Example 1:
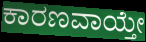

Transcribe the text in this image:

ಕಾರಣವಾಯ್ತೇ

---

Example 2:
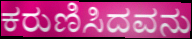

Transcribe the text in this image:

ಕರುಣಿಸಿದವನು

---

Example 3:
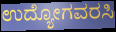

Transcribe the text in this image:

ಉದ್ಯೋಗವರಸಿ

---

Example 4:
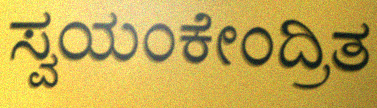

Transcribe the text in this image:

ಸ್ವಯಂಕೇಂದ್ರಿತ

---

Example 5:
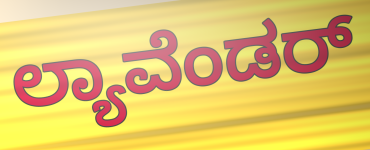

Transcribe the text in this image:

ಲ್ಯಾವೆಂಡರ್